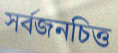
সর্বজনচিত্ত